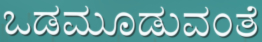
ಒಡಮೂಡುವಂತೆ